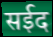
सईद